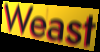
Weast